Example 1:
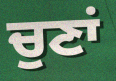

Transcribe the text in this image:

ਚੁਣਾਂ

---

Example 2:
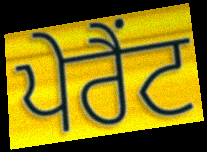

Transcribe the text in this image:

ਪੇਰੈਂਟ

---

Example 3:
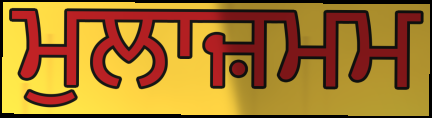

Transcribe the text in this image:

ਮੁਲਾਜ਼ਮਮ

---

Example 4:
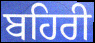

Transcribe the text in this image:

ਬਹਿਰੀ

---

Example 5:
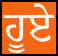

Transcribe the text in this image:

ਹੂਏ